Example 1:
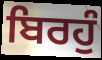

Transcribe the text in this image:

ਬਿਰਹੁੰ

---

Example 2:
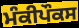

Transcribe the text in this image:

ਮੰਕੀਪੌਕਸ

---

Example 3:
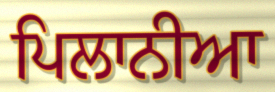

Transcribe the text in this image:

ਪਿਲਾਨੀਆ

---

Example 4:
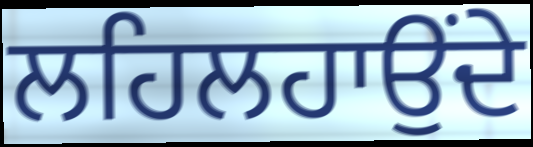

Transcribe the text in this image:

ਲਹਿਲਹਾਉਂਦੇ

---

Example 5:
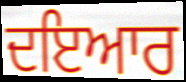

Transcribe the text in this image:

ਦਇਆਰ